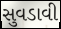
સુવડાવી